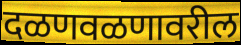
दळणवळणावरील